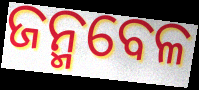
ଜନ୍ମବେଳ